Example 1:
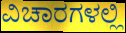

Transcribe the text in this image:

ವಿಚಾರಗಳಲ್ಲಿ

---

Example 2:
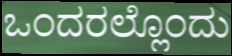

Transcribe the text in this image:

ಒಂದರಲ್ಲೊಂದು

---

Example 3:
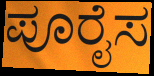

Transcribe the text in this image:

ಪೂರೈಸ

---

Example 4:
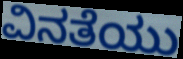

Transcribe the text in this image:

ವಿನತೆಯು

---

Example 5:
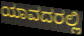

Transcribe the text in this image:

ಯಾವದರಲ್ಲಿ